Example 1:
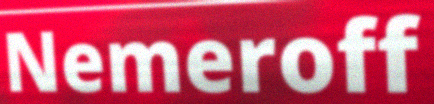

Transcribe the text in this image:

Nemeroff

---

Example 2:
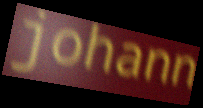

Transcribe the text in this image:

johann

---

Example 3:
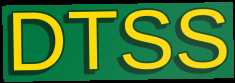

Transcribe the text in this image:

DTSS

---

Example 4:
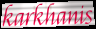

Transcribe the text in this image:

karkhanis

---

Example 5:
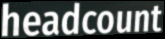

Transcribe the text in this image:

headcount